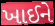
ખાઈને